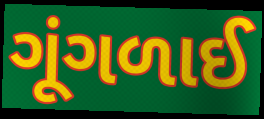
ગૂંગળાઈ